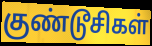
குண்டூசிகள்